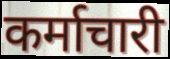
कर्माचारी